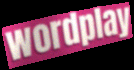
wordplay